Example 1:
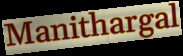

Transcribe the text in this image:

Manithargal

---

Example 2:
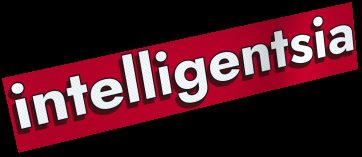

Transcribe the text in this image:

intelligentsia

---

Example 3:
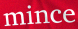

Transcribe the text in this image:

mince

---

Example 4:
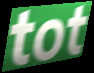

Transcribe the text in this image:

tot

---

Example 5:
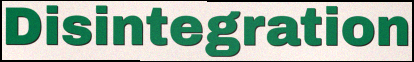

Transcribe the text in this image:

Disintegration